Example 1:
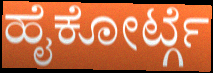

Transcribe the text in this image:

ಹೈಕೋರ್ಟ್ಗೆ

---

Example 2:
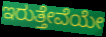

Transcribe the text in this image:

ಇರುತ್ತೇವೆಯೇ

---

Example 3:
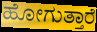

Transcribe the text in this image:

ಹೋಗುತ್ತಾರೆ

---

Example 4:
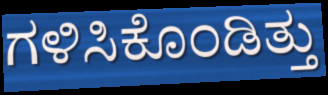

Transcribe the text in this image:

ಗಳಿಸಿಕೊಂಡಿತ್ತು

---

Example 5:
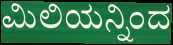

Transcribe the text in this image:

ಮಿಲಿಯನ್ನಿಂದ